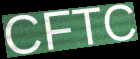
CFTC